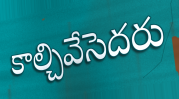
కాల్చివేసెదరు